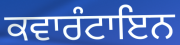
ਕਵਾਰੰਟਾਇਨ